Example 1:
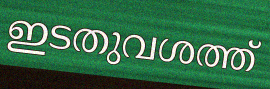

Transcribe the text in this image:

ഇടതുവശത്ത്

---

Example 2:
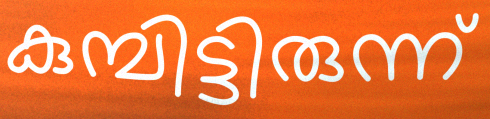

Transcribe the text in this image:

കുമ്പിട്ടിരുന്ന്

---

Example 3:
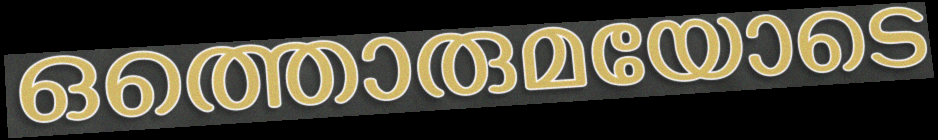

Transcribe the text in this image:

ഒത്തൊരുമയോടെ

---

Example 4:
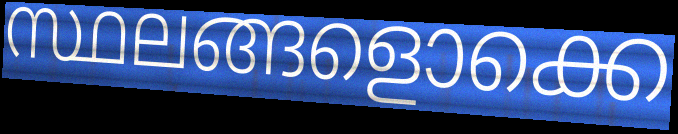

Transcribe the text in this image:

സ്ഥലങ്ങളൊക്കെ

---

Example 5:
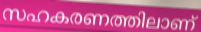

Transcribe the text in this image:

സഹകരണത്തിലാണ്